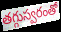
తగ్గుస్వరంతో